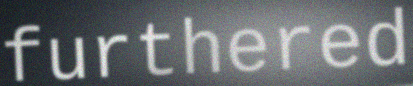
furthered